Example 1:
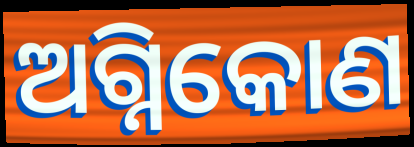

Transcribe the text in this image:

ଅଗ୍ନିକୋଣ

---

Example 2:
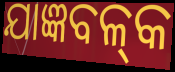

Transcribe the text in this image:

ଯାଜ୍ଞବଳ୍‍କ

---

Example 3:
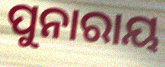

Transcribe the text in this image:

ପୁନାରାୟ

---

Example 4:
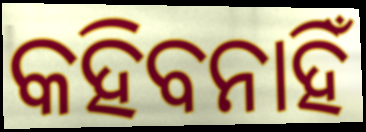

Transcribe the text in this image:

କହିବନାହିଁ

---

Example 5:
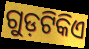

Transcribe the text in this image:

ଗୁଡ଼ଟିକିଏ